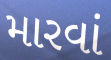
મારવાં